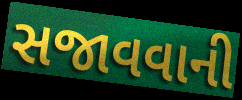
સજાવવાની